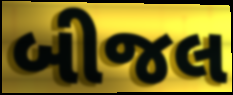
બીજલ